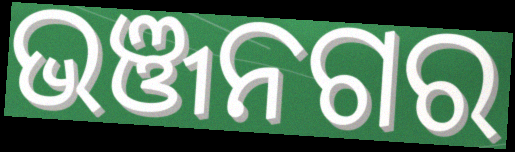
ଭଞ୍ଜନଗର